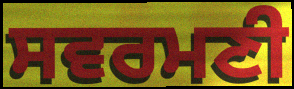
ਸਵਰਮਣੀ